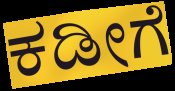
ಕಡೀಗೆ